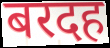
बरदह